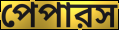
পেপারস